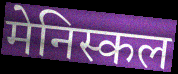
मेनिस्कल